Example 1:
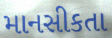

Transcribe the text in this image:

માનસીકતા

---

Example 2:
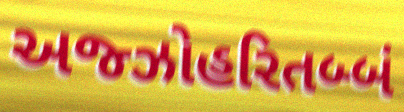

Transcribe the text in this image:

અજ્ઝોહરિતબ્બં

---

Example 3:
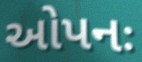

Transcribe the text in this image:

ઓપનઃ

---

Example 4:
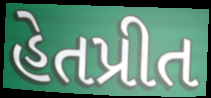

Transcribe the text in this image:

હેતપ્રીત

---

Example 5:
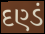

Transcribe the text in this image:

દણ્ડં